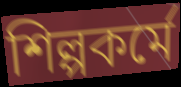
শিল্পকর্মে